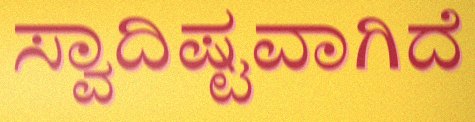
ಸ್ವಾದಿಷ್ಟವಾಗಿದೆ